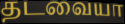
தடவையா